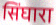
सिंघारा